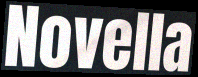
Novella